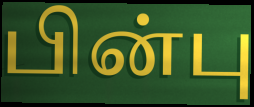
பின்பு